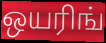
ஒயரிங்